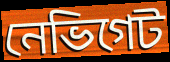
নেভিগেট